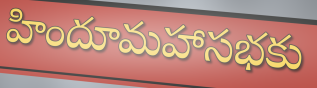
హిందూమహాసభకు